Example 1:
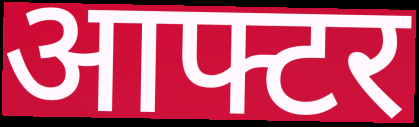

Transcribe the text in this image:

आफ्टर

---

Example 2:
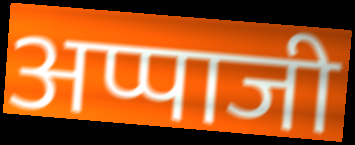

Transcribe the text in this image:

अप्पाजी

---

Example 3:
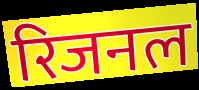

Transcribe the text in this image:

रिजनल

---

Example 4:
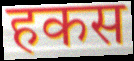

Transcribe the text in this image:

हकस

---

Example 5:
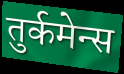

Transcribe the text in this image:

तुर्कमेन्स